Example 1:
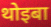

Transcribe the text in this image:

थोइबा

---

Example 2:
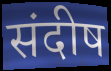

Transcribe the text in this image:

संदीष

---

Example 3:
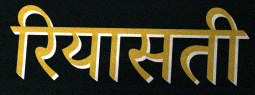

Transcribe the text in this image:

रियासती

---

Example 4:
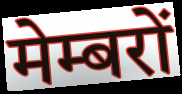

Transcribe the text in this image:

मेम्बरों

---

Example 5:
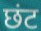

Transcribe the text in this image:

छंट